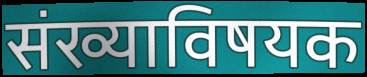
संख्याविषयक